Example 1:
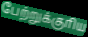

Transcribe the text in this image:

பேற்றுக்குரிய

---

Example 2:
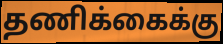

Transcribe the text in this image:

தணிக்கைக்கு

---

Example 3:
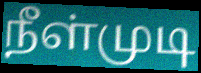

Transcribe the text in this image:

நீள்முடி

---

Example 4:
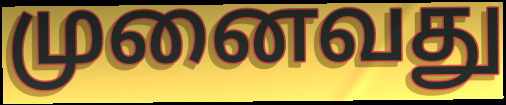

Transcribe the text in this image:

முனைவது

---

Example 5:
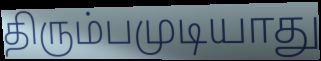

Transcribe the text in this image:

திரும்பமுடியாது